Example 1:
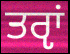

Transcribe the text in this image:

ਤਰੵਾਂ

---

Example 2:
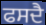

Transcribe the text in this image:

ਫਸਦੈ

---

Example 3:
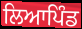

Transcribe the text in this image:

ਲਿਆਪਿੰਡ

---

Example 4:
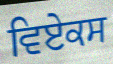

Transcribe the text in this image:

ਵਿਏਕਸ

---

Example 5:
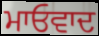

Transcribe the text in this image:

ਮਾਓਵਾਦ